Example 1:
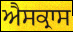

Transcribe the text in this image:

ਐਸਕ੍ਰਾਸ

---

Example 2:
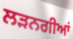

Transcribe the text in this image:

ਲੜਨਗੀਆਂ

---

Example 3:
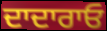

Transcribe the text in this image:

ਦਾਦਾਰਾਓ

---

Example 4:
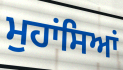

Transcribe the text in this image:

ਮੁਹਾਂਸਿਆਂ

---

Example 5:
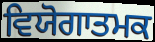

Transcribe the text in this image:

ਵਿਯੋਗਾਤਮਕ